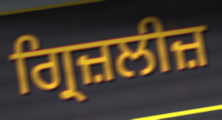
ਗ੍ਰਿਜ਼ਲੀਜ਼